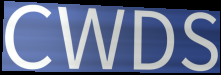
CWDS